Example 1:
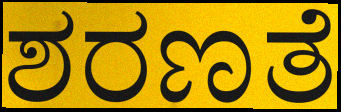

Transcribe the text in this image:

ಶರಣತೆ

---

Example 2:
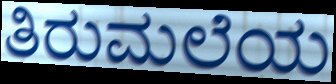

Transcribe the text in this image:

ತಿರುಮಲೆಯ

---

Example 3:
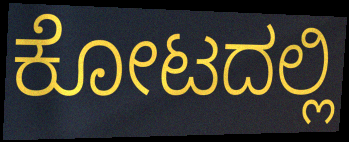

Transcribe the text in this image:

ಕೋಟದಲ್ಲಿ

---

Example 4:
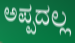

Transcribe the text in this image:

ಅಪ್ಪದಲ್ಲ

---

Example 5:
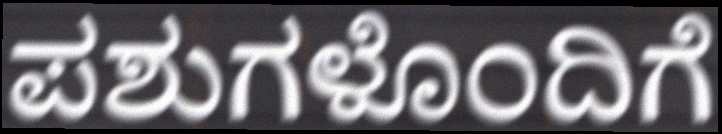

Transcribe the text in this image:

ಪಶುಗಳೊಂದಿಗೆ